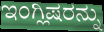
ಇಂಗ್ಲಿಷರನ್ನು